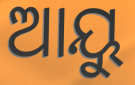
ଆୟୁ